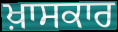
ਖ਼ਾਸਕਾਰ